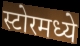
स्टोरमध्ये